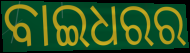
ବାଇଧରର